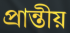
প্রান্তীয়